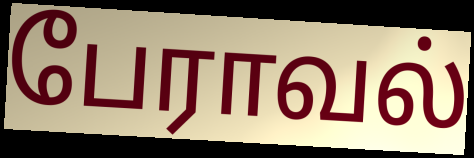
பேராவல்